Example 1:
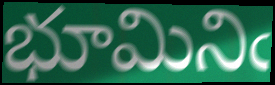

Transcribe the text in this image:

భూమినిఁ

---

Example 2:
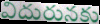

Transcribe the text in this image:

విదురునకు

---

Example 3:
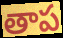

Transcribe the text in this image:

తాప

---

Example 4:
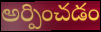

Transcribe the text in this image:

అర్పించడం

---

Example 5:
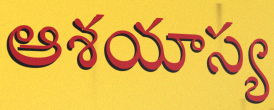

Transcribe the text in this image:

ఆశయాస్య